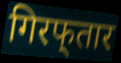
गिरफ्‌तार